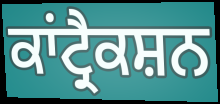
ਕਾਂਟ੍ਰੈਕਸ਼ਨ